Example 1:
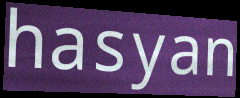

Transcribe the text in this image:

hasyan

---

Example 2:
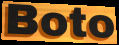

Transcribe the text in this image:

Boto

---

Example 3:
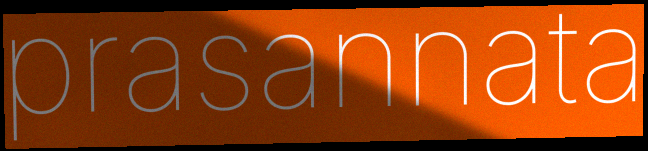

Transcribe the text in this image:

prasannata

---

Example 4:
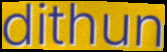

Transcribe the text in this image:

dithun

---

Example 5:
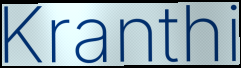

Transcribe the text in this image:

Kranthi